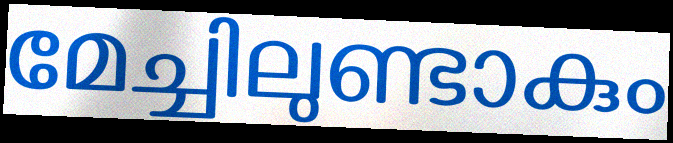
മേച്ചിലുണ്ടാകും